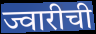
ज्वारीची